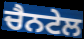
ਚੈਨਟੇਲ